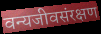
वन्यजीवसंरक्षण